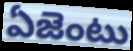
ఏజెంటు